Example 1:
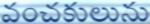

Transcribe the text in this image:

వంచకులును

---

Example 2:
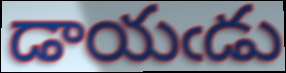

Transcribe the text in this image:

డాయఁడు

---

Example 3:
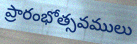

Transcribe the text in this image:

ప్రారంభోత్సవములు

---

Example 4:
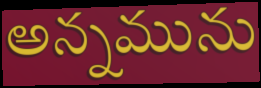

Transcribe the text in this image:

అన్నమును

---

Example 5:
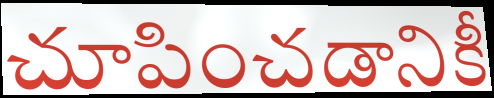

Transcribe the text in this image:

చూపించడానికీ